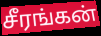
சீரங்கன்